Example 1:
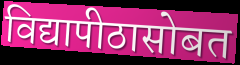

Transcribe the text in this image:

विद्यापीठासोबत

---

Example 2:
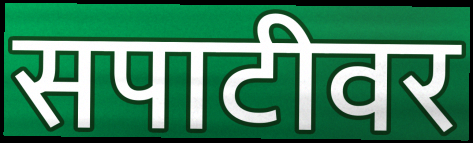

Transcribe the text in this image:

सपाटीवर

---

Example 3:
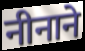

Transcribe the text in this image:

नीनाने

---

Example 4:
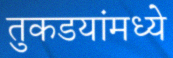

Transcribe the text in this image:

तुकडयांमध्ये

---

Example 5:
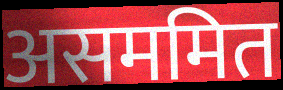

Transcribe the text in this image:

असममित